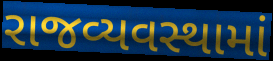
રાજવ્યવસ્થામાં